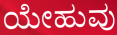
ಯೇಹುವು